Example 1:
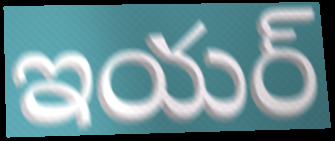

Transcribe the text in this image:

ఇయర్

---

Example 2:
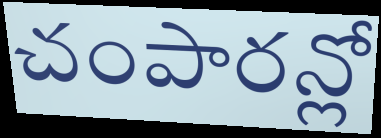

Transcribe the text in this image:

చంపారన్లో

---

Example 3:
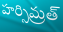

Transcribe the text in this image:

హర్సిమ్రత్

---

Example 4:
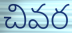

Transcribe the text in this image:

చివర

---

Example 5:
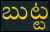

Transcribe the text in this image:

బుట్ట